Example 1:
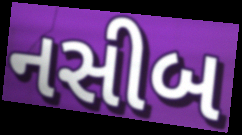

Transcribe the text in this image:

નસીબ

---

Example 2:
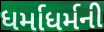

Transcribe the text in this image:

ધર્માધર્મની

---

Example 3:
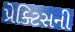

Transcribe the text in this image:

પ્રેક્ટિસની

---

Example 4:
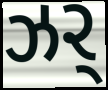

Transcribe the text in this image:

ઝર્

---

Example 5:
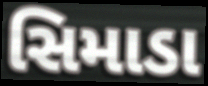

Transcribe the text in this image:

સિમાડા